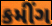
કમીંગ